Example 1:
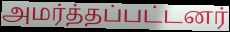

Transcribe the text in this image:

அமர்த்தப்பட்டனர்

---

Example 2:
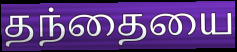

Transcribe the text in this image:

தந்தையை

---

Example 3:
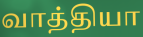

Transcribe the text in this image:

வாத்தியா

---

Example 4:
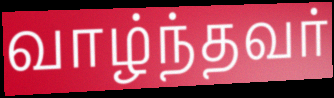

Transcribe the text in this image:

வாழ்ந்தவர்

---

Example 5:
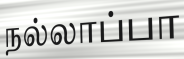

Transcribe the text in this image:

நல்லாப்பா